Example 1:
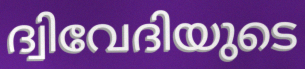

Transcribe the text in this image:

ദ്വിവേദിയുടെ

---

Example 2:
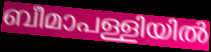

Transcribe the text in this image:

ബീമാപള്ളിയിൽ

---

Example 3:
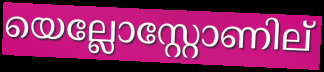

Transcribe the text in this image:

യെല്ലോസ്റ്റോണില്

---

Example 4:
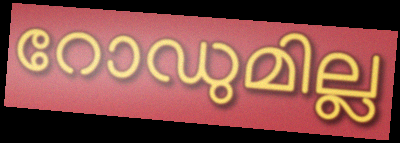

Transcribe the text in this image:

റോഡുമില്ല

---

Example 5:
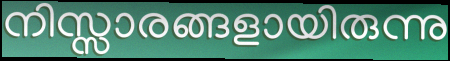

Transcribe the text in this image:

നിസ്സാരങ്ങളായിരുന്നു